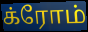
க்ரோம்